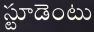
స్టూడెంటు